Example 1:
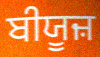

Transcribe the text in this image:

ਬੀਯੂਜ਼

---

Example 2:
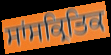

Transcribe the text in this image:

ਸਾਂਸਕ੍ਰਿਤਿਕ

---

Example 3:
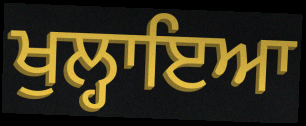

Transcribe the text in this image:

ਖੁਲ੍ਹਾਇਆ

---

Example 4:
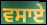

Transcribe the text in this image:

ਵਸਾਏ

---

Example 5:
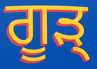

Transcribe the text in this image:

ਗੂੜ੍